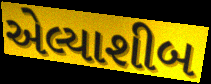
એલ્યાશીબ